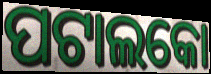
ପଟାଲକୋ